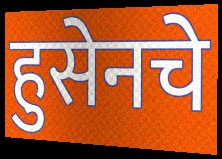
हुसेनचे